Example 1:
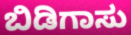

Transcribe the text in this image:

ಬಿಡಿಗಾಸು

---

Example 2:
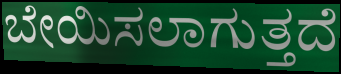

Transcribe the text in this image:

ಬೇಯಿಸಲಾಗುತ್ತದೆ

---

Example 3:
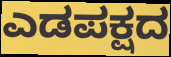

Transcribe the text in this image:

ಎಡಪಕ್ಷದ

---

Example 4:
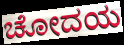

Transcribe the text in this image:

ಚೋದಯ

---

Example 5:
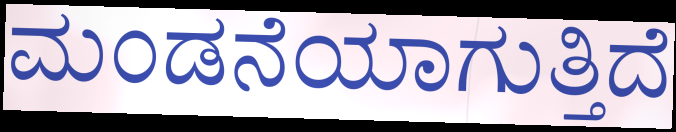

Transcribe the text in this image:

ಮಂಡನೆಯಾಗುತ್ತಿದೆ